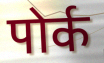
पोर्क